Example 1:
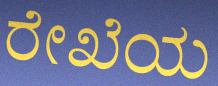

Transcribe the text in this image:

ರೇಖೆಯ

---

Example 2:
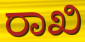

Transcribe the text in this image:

ರಾಖಿ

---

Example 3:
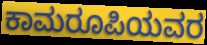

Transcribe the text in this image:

ಕಾಮರೂಪಿಯವರ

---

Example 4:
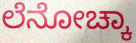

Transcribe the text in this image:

ಲೆನೋಚ್ಕಾ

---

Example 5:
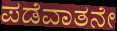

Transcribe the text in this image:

ಪಡೆವಾತನೇ